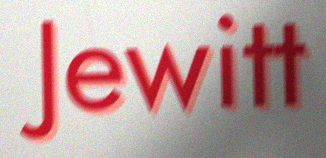
Jewitt